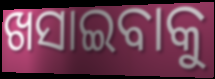
ଖସାଇବାକୁ